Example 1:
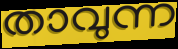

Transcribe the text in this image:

താവുന്ന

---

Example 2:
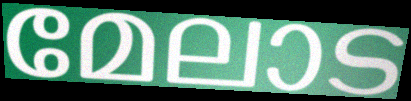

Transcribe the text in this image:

മേലാട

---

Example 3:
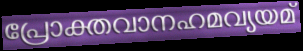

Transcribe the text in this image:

പ്രോക്തവാനഹമവ്യയമ്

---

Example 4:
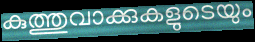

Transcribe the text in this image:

കുത്തുവാക്കുകളുടെയും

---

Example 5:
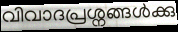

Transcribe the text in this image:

വിവാദപ്രശ്നങ്ങൾക്കു